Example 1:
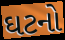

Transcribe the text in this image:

ઘટનો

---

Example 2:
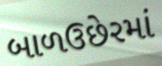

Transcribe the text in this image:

બાળઉછેરમાં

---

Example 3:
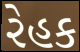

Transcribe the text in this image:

રેહક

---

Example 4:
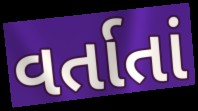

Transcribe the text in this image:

વર્તાતાં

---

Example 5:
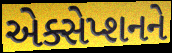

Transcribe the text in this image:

એક્સેપ્શનને